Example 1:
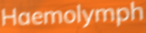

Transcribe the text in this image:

Haemolymph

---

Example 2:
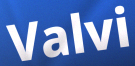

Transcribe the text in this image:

Valvi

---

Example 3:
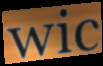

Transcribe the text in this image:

wic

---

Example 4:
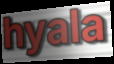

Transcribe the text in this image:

hyala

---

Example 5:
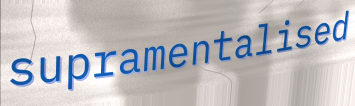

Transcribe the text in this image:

supramentalised